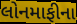
લોનમાફીના